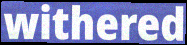
withered